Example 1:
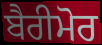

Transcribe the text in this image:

ਬੈਰੀਮੋਰ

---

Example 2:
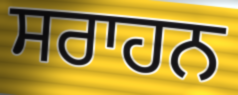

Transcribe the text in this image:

ਸਰਾਹਨ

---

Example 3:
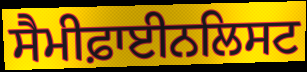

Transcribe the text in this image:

ਸੈਮੀਫ਼ਾਈਨਲਿਸਟ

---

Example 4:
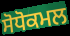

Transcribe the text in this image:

ਸੋਧੋਕਮਲ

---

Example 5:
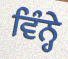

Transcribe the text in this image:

ਵਿੰਨ੍ਹੇ